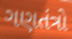
ગણતંત્રો